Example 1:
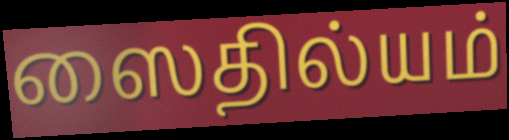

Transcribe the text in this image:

ஸைதில்யம்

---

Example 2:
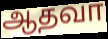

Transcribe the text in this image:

ஆதவா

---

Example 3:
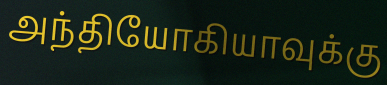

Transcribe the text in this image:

அந்தியோகியாவுக்கு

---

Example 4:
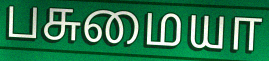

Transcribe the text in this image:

பசுமையா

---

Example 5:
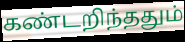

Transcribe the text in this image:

கண்டறிந்ததும்